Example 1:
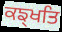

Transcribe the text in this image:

ਕਙ੍ਖਤਿ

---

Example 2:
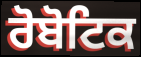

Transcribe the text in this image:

ਰੋਬੋਟਿਕ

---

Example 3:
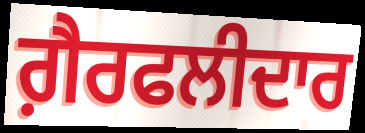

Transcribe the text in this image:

ਗ਼ੈਰਫਲੀਦਾਰ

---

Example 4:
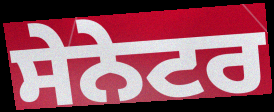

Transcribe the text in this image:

ਸੇਨੇਟਰ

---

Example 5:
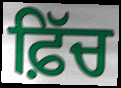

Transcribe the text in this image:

ਫ਼ਿੱਚ